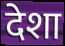
देशा